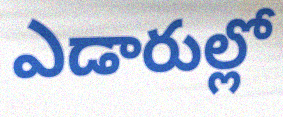
ఎడారుల్లో